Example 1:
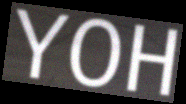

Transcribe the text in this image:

YOH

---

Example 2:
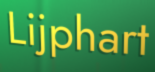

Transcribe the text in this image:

Lijphart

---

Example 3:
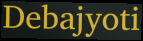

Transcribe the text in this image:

Debajyoti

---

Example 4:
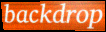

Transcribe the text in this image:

backdrop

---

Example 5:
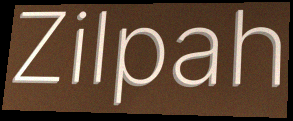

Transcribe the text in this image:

Zilpah